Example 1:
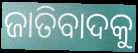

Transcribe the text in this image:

ଜାତିବାଦକୁ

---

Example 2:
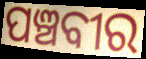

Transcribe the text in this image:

ପଞ୍ଚବୀର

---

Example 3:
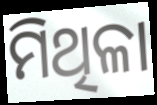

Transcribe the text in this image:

ମିଥିଳା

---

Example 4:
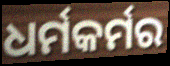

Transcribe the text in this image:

ଧର୍ମକର୍ମର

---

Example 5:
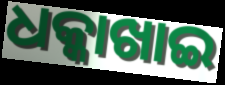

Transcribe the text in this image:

ଧକ୍କାଖାଇ